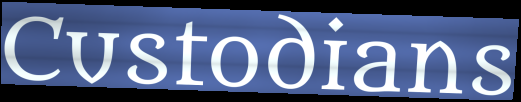
Custodians